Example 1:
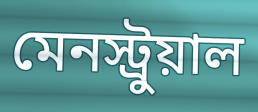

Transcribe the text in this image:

মেনস্ট্রুয়াল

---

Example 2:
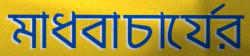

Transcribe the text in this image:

মাধবাচার্যের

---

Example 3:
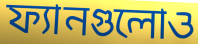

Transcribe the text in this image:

ফ্যানগুলোও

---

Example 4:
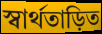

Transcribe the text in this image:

স্বার্থতাড়িত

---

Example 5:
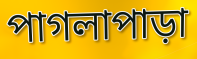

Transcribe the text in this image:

পাগলাপাড়া